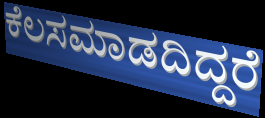
ಕೆಲಸಮಾಡದಿದ್ದರೆ